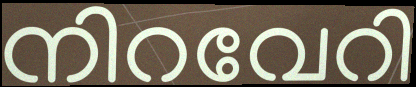
നിറവേറി